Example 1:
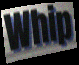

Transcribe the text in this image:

Whip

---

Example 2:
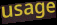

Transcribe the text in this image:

usage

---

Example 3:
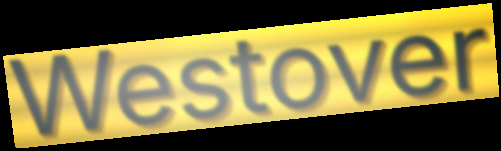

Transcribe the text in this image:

Westover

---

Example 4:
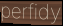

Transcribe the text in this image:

perfidy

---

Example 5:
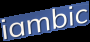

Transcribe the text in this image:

iambic